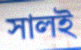
সালই